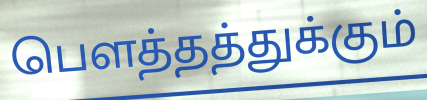
பௌத்தத்துக்கும்